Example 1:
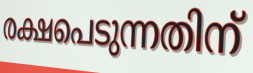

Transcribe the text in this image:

രക്ഷപെടുന്നതിന്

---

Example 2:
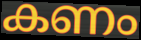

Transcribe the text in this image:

കണം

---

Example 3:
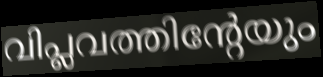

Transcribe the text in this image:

വിപ്ലവത്തിന്റേയും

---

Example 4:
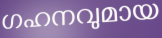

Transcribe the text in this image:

ഗഹനവുമായ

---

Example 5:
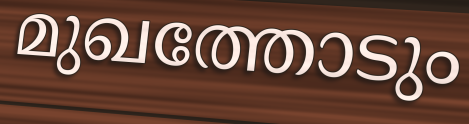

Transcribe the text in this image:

മുഖത്തോടും